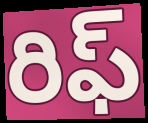
రిఫ్